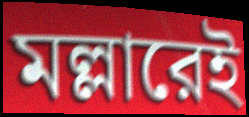
মল্লারেই